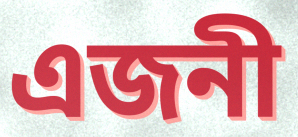
এজনী